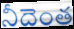
నీదెంత